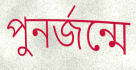
পুনর্জন্মে